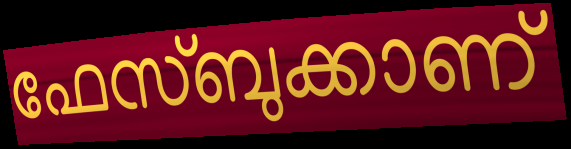
ഫേസ്ബുക്കാണ്